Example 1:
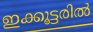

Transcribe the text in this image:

ഇക്കൂട്ടരിൽ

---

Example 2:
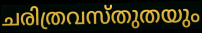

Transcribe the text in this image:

ചരിത്രവസ്തുതയും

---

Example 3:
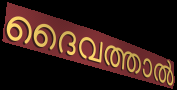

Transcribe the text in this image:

ദൈവത്താൽ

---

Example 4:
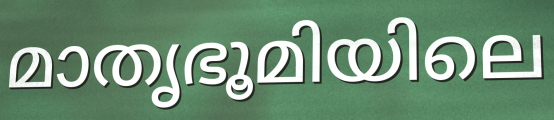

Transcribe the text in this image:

മാതൃഭൂമിയിലെ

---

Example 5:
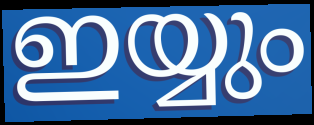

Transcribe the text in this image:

ഇയ്യും